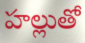
హల్లుతో